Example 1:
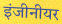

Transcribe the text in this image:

इंजीनीयर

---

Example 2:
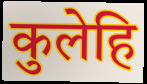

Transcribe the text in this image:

कुलेहि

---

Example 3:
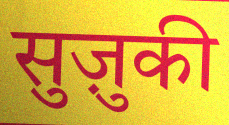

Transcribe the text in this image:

सुज़ुकी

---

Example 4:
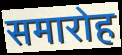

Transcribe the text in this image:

समारोह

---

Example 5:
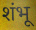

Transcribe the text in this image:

शंभू